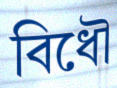
বিধৌ